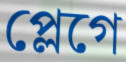
প্লেগে